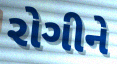
રોગીને